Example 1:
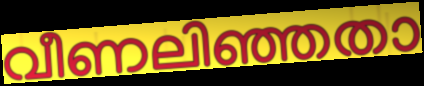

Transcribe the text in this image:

വീണലിഞ്ഞതാ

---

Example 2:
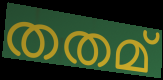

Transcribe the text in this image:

തതമ്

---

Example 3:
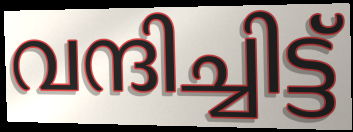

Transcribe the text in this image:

വന്ദിച്ചിട്ട്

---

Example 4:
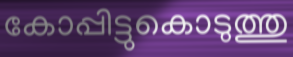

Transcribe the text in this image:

കോപ്പിട്ടുകൊടുത്തു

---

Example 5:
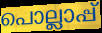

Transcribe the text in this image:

പൊല്ലാപ്പ്